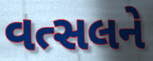
વત્સલને